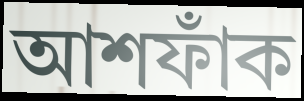
আশফাঁক